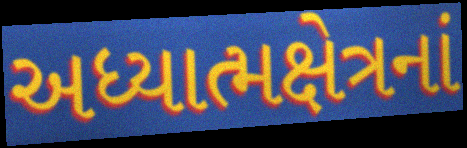
અધ્યાત્મક્ષેત્રનાં